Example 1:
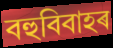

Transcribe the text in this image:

বহুবিবাহৰ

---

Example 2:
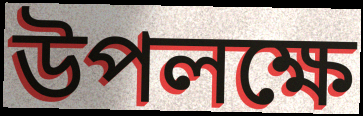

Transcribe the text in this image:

উপলক্ষে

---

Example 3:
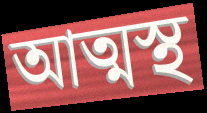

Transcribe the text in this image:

আত্মস্থ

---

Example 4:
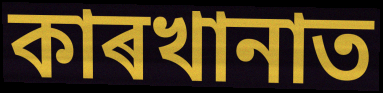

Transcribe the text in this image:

কাৰখানাত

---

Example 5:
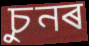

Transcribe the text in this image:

চুনৰ